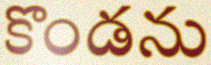
కొండను